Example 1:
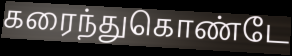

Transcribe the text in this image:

கரைந்துகொண்டே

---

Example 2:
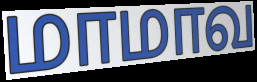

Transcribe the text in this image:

மாமாவ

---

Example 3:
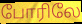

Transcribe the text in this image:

போரிலே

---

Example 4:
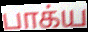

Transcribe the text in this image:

பாக்ய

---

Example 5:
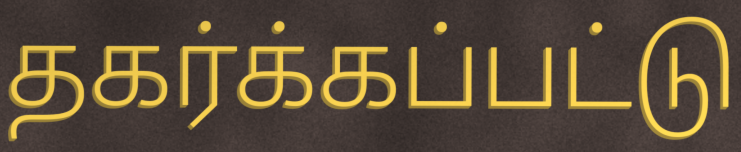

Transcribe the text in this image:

தகர்க்கப்பட்டு